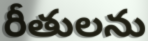
రీతులను